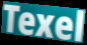
Texel